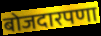
बोजदारपणा